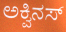
ಅಕ್ವಿನಸ್